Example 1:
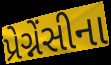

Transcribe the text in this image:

પ્રેગ્નેંસીના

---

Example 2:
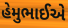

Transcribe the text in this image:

હેમુભાઈએ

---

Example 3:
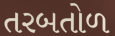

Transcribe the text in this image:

તરબતોળ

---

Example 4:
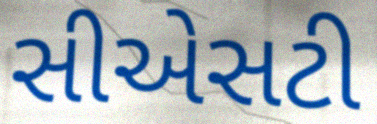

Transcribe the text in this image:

સીએસટી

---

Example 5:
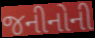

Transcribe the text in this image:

જનીનોની